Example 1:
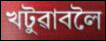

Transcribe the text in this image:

খটুৱাবলৈ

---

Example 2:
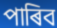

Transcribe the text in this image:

পাৰিব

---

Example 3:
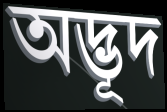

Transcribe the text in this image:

অদ্ভূদ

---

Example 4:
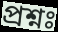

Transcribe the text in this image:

প্ৰশ্নঃ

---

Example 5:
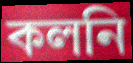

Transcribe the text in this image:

কলনি